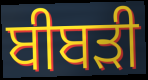
ਬੀਬੜੀ